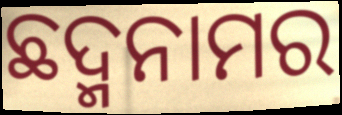
ଛଦ୍ମନାମର